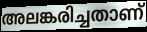
അലങ്കരിച്ചതാണ്